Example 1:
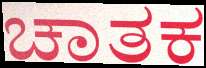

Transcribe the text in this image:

ಚಾತಕ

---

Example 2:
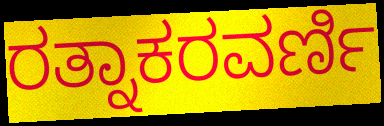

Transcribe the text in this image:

ರತ್ನಾಕರವರ್ಣಿ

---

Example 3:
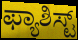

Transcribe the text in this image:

ಫ್ಯಾಶಿಸ್ಟ್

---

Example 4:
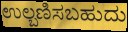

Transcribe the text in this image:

ಉಲ್ಬಣಿಸಬಹುದು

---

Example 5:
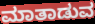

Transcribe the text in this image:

ಮಾತಾಡುವ